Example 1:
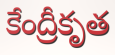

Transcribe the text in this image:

కేంద్రీకృత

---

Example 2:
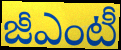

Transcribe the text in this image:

జీఎంటీ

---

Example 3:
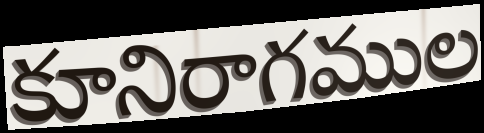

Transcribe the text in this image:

కూనిరాగముల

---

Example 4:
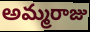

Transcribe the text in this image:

అమ్మరాజు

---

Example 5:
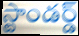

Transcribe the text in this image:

స్టాండర్డ్